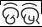
ଡିଭି